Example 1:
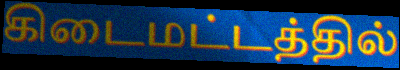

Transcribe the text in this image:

கிடைமட்டத்தில்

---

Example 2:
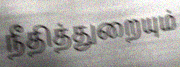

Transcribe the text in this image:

நீதித்துறையும்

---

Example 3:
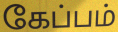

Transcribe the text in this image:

கேப்பம்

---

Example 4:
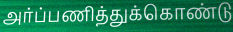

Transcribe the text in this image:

அர்ப்பணித்துக்கொண்டு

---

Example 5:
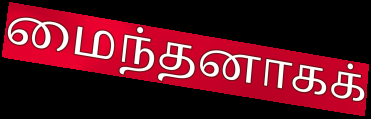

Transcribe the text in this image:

மைந்தனாகக்